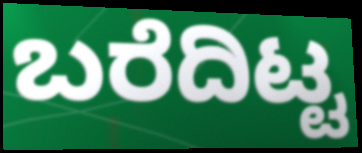
ಬರೆದಿಟ್ಟ